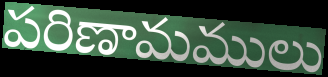
పరిణామములు